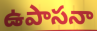
ఉపాసనా